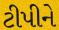
ટીપીને